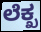
ಲೆಕ್ಖ